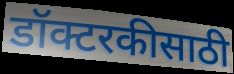
डॉक्टरकीसाठी